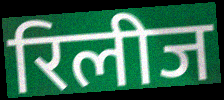
रिलीज